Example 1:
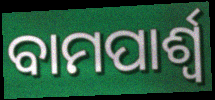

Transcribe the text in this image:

ବାମପାର୍ଶ୍ଵ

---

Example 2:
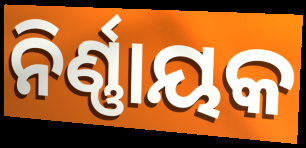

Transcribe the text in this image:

ନିର୍ଣ୍ଣାୟକ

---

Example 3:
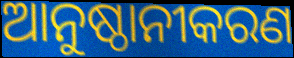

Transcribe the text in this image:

ଆନୁଷ୍ଠାନୀକରଣ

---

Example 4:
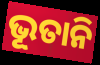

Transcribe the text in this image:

ଭୂତାନି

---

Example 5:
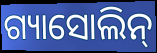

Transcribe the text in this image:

ଗ୍ୟାସୋଲିନ୍